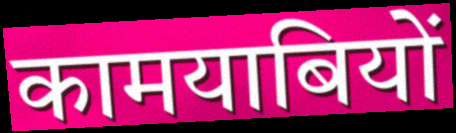
कामयाबियों